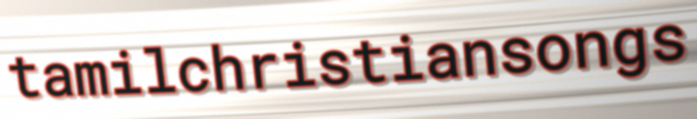
tamilchristiansongs